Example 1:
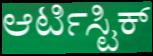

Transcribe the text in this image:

ಆರ್ಟಿಸ್ಟಿಕ್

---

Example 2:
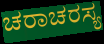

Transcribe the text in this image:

ಚರಾಚರಸ್ಯ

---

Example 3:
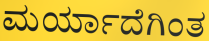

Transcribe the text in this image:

ಮರ್ಯಾದೆಗಿಂತ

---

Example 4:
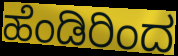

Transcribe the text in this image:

ಹೆಂಡಿರಿಂದ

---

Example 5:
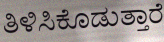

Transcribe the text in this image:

ತಿಳಿಸಿಕೊಡುತ್ತಾರೆ